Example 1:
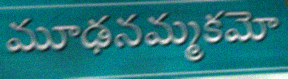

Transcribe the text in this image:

మూఢనమ్మకమో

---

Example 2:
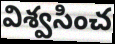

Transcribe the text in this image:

విశ్వసించ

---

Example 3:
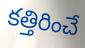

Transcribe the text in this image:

కత్తిరించే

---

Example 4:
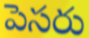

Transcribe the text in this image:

పెసరు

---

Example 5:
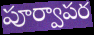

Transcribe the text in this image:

పూర్వాపర